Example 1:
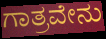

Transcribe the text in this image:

ಗಾತ್ರವೇನು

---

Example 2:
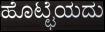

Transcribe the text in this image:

ಹೊಟ್ಟೆಯದು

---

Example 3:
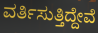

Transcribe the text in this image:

ವರ್ತಿಸುತ್ತಿದ್ದೇವೆ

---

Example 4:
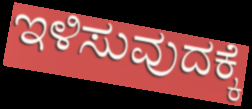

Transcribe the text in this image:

ಇಳಿಸುವುದಕ್ಕೆ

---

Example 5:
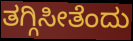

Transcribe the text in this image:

ತಗ್ಗಿಸೀತೆಂದು